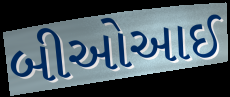
બીઓઆઈ